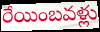
రేయింబవళ్లు